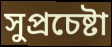
সুপ্রচেষ্টা